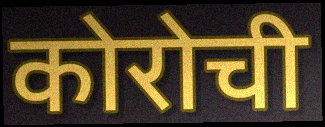
कोरोची